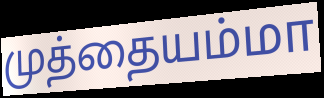
முத்தையம்மா